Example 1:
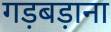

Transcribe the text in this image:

गड़बड़ाना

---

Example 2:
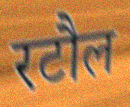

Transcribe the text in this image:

रटौल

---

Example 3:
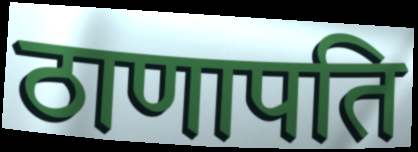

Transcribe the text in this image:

ठाणापति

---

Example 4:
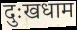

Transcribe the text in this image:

दुःखधाम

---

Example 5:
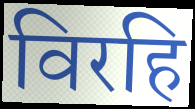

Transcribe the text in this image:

विरहि